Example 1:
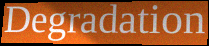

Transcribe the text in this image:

Degradation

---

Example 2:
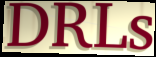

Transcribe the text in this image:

DRLs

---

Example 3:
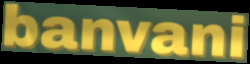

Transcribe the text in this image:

banvani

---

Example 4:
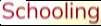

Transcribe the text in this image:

Schooling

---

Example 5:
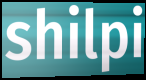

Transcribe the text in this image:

shilpi